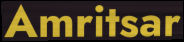
Amritsar